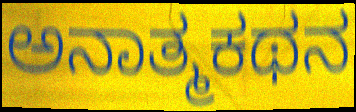
ಅನಾತ್ಮಕಥನ